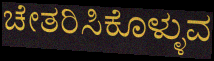
ಚೇತರಿಸಿಕೊಳ್ಳುವ